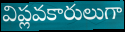
విప్లవకారులుగా